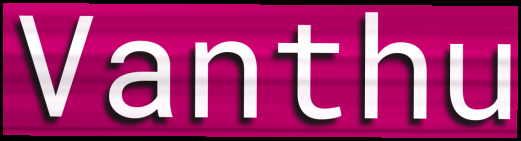
Vanthu